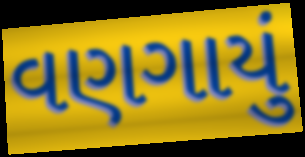
વણગાયું